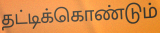
தட்டிக்கொண்டும்